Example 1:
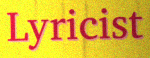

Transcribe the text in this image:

Lyricist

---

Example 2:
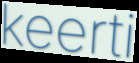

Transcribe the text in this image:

keerti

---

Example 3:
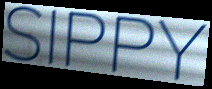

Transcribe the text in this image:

SIPPY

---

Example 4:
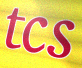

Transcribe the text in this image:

tcs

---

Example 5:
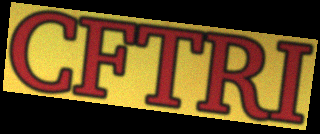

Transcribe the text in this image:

CFTRI